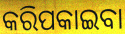
କରିପକାଇବା